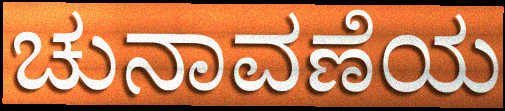
ಚುನಾವಣೆಯ